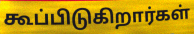
கூப்பிடுகிறார்கள்